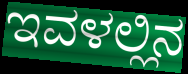
ಇವಳಲ್ಲಿನ